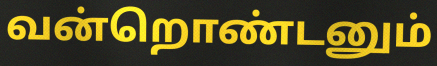
வன்றொண்டனும்